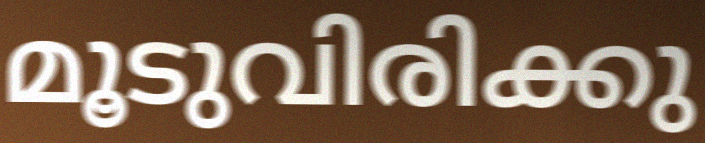
മൂടുവിരിക്കു